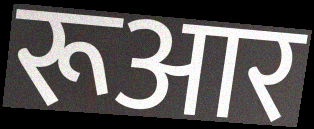
रूआर